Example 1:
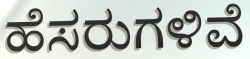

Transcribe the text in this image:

ಹೆಸರುಗಳಿವೆ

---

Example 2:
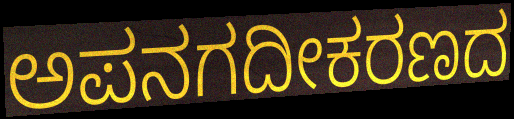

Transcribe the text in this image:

ಅಪನಗದೀಕರಣದ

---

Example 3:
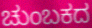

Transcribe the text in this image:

ಚುಂಬಕದ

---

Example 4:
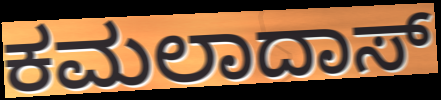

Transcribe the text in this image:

ಕಮಲಾದಾಸ್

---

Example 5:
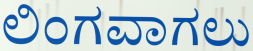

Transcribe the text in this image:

ಲಿಂಗವಾಗಲು